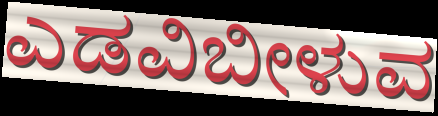
ಎಡವಿಬೀಳುವ